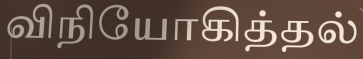
விநியோகித்தல்